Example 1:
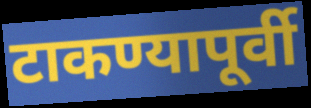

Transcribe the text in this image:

टाकण्यापूर्वी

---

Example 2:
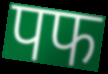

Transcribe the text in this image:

पफ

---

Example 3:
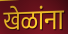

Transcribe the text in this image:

खेळांना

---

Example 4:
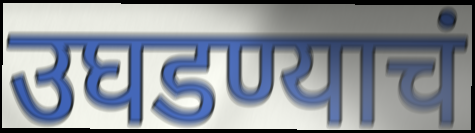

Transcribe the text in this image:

उघडण्याचं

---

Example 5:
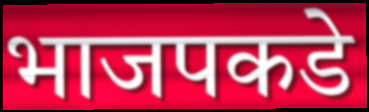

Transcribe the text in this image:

भाजपकडे